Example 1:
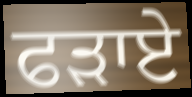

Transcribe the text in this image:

ਫੜਾਏ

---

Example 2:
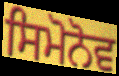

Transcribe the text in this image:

ਸਿਮੋਨੋਵ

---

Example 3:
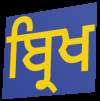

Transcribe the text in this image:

ਬ੍ਰਿਖ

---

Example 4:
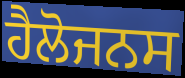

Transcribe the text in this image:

ਹੈਲੋਜਨਸ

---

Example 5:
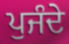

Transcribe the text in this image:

ਪੁਜੰਦੇ